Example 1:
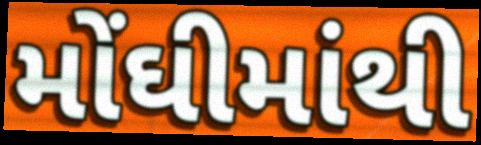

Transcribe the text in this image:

મોંઘીમાંથી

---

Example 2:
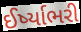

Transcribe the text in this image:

ઈર્ષ્યાભરી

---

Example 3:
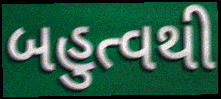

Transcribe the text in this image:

બહુત્વથી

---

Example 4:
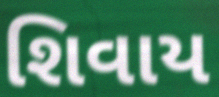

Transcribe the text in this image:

શિવાય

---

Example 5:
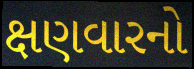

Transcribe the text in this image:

ક્ષણવારનો